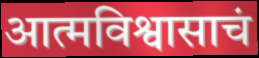
आत्मविश्वासाचं